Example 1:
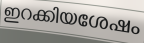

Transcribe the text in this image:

ഇറക്കിയശേഷം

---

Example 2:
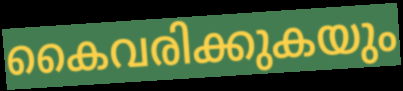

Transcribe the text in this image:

കൈവരിക്കുകയും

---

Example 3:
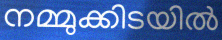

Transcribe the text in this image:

നമ്മുക്കിടയിൽ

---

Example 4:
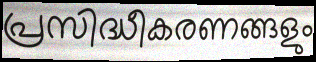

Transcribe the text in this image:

പ്രസിദ്ധീകരണങ്ങളും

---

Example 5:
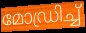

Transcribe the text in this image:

മോഡ്രിച്ച്